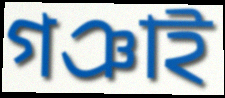
গঞাই